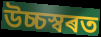
উচ্চস্বৰত